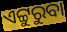
ଏଟ୍ଟୁରୁବା